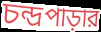
চন্দ্রপাড়ার